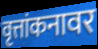
वृत्तांकनावर